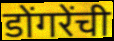
डोंगरेंची